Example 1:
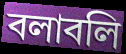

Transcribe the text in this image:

বলাবলি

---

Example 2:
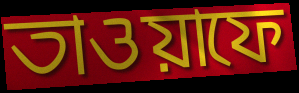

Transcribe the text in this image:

তাওয়াফে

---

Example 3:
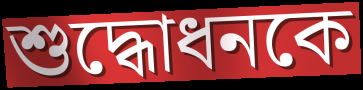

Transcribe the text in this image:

শুদ্ধোধনকে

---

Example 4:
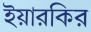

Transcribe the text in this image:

ইয়ারকির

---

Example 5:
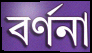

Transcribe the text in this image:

বর্ণনা